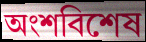
অংশবিশেষ